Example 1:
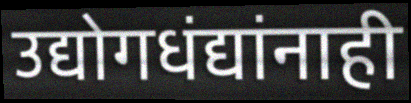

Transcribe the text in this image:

उद्योगधंद्यांनाही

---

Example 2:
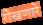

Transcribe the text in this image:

रोखणारे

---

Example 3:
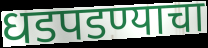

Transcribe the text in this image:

धडपडण्याचा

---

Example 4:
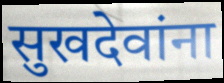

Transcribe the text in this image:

सुखदेवांना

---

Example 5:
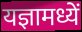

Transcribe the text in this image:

यज्ञामध्यें